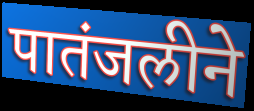
पातंजलीने